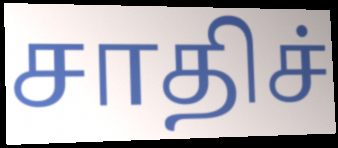
சாதிச்